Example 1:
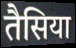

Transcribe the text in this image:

तैसिया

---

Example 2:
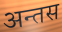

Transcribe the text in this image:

अन्तस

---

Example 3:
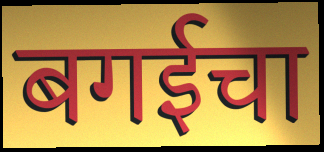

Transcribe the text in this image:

बगईचा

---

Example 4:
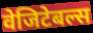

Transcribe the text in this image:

वेजिटेबल्स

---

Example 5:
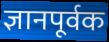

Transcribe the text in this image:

ज्ञानपूर्वक